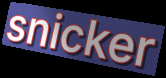
snicker